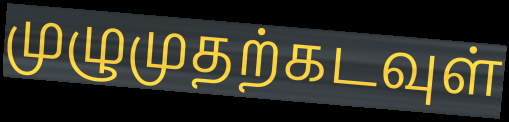
முழுமுதற்கடவுள்